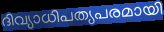
ദിവ്യാധിപത്യപരമായി